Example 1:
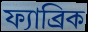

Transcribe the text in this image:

ফ্যাব্রিক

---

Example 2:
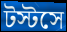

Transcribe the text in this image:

টস্টসে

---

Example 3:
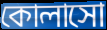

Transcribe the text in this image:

কোলাসো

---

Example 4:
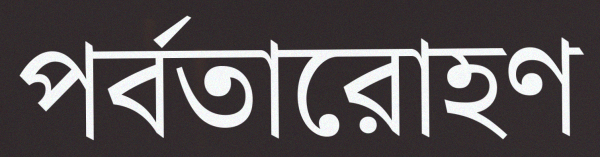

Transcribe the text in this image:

পর্বতারোহণ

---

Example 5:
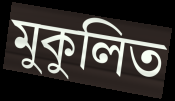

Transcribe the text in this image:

মুকুলিত